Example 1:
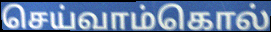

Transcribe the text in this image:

செய்வாம்கொல்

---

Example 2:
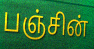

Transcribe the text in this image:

பஞ்சின்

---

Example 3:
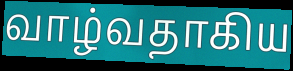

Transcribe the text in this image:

வாழ்வதாகிய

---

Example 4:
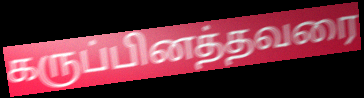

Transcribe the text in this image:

கருப்பினத்தவரை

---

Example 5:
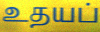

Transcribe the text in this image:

உதயப்